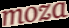
moza